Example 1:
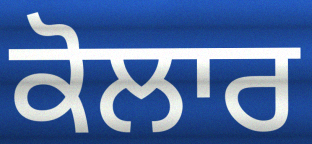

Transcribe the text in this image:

ਕੋਲਾਰ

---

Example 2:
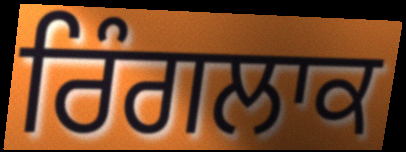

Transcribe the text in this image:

ਰਿੰਗਲਾਕ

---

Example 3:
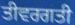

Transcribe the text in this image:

ਤੀਵਰਗਤੀ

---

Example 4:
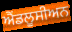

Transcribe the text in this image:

ਐਂਡਲੂਸੀਅਨ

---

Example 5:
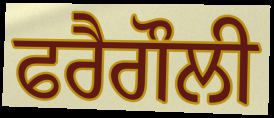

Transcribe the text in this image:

ਫਰੈਗੌਲੀ